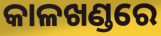
କାଳଖଣ୍ଡରେ